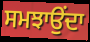
ਸਮਝਾਉਂਦਾ